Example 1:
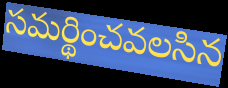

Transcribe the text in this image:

సమర్థించవలసిన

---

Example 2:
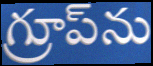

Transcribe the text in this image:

గ్రూప్‌ను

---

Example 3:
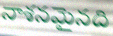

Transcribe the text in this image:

నాశనమైనది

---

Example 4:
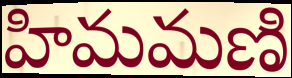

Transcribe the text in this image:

హిమమణి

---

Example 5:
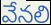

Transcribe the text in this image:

వేనలి